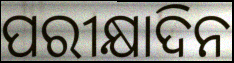
ପରୀକ୍ଷାଦିନ